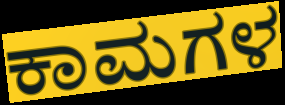
ಕಾಮಗಳ